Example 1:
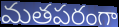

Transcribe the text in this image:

మతపరంగా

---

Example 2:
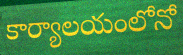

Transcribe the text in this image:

కార్యాలయంలోనో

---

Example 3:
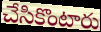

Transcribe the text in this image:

చేసికొంటారు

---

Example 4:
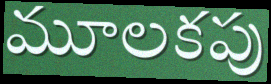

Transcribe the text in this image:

మూలకపు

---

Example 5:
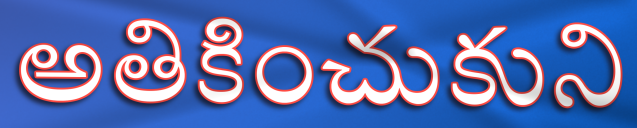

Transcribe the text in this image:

అతికించుకుని